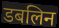
डबलिन